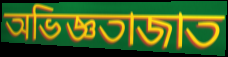
অভিজ্ঞতাজাত